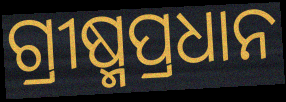
ଗ୍ରୀଷ୍ମପ୍ରଧାନ